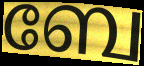
ബേ